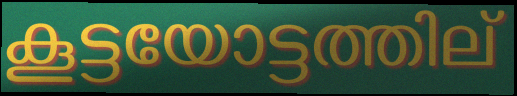
കൂട്ടയോട്ടത്തില്